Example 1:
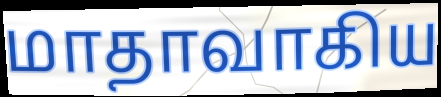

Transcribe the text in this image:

மாதாவாகிய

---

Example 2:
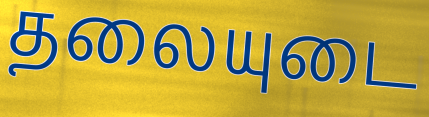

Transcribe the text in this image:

தலையுடை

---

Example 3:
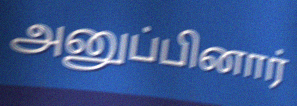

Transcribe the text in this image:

அனுப்பினார்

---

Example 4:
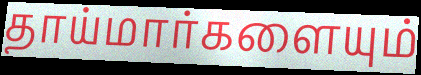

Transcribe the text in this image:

தாய்மார்களையும்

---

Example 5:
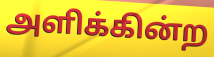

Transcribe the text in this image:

அளிக்கின்ற